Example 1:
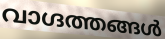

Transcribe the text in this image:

വാഗ്ദത്തങ്ങൾ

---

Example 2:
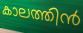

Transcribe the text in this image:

കാലത്തിൻ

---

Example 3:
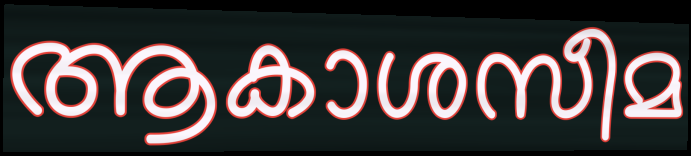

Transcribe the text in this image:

ആകാശസീമ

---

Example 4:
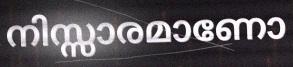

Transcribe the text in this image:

നിസ്സാരമാണോ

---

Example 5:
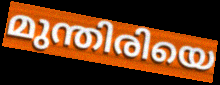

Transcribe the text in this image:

മുന്തിരിയെ